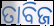
ତାବିଜ